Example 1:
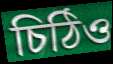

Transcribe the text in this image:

চিঠিও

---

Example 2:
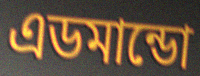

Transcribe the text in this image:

এডমান্ডো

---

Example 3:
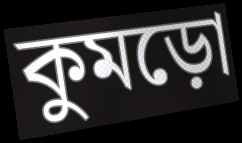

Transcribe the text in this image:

কুমড়ো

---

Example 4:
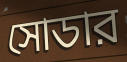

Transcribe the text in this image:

সোডার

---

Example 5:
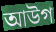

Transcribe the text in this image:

আউগ